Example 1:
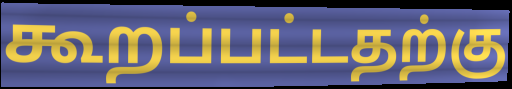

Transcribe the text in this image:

கூறப்பட்டதற்கு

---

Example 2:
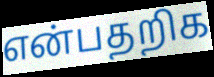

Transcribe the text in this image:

என்பதறிக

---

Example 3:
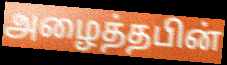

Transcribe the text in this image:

அழைத்தபின்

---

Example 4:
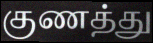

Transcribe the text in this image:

குணத்து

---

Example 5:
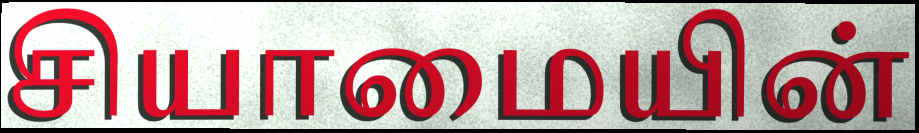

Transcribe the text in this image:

சியாமையின்